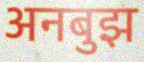
अनबुझ